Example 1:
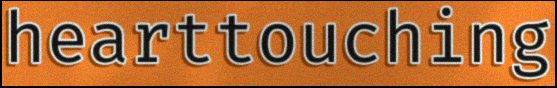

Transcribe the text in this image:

hearttouching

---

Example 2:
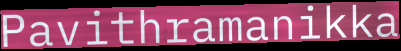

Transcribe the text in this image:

Pavithramanikka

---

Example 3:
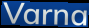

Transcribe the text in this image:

Varna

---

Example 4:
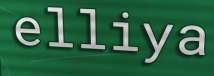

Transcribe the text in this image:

elliya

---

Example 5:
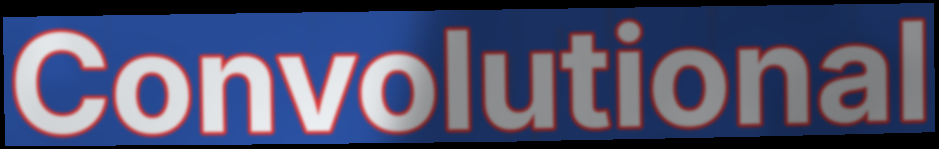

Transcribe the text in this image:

Convolutional